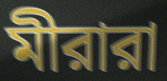
মীরারা